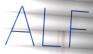
ALF